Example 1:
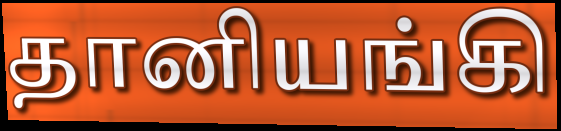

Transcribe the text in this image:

தானியங்கி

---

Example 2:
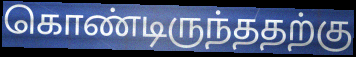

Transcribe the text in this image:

கொண்டிருந்ததற்கு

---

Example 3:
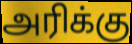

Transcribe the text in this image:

அரிக்கு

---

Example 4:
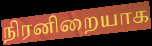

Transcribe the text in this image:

நிரனிறையாக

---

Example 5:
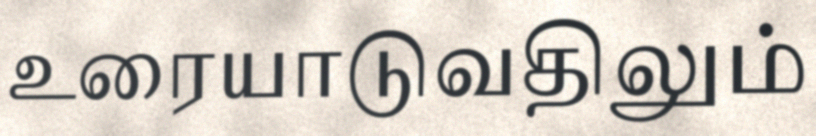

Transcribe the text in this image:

உரையாடுவதிலும்